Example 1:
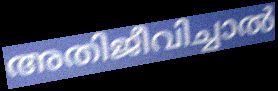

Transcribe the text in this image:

അതിജീവിച്ചാൽ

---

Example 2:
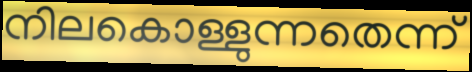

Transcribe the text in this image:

നിലകൊള്ളുന്നതെന്ന്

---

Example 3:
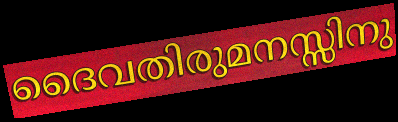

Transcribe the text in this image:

ദൈവതിരുമനസ്സിനു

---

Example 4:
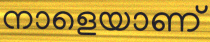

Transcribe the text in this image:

നാളെയാണ്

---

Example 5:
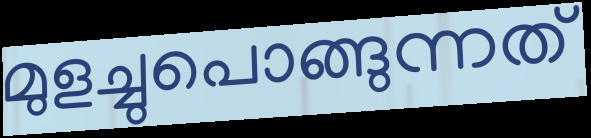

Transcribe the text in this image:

മുളച്ചുപൊങ്ങുന്നത്